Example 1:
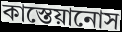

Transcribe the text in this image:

কাস্তেয়ানোস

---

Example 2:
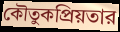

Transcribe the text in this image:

কৌতুকপ্রিয়তার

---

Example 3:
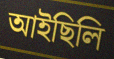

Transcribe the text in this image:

আইছিলি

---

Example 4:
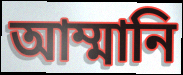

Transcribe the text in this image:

আম্মানি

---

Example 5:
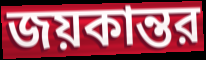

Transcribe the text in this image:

জয়কান্তর